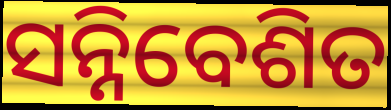
ସନ୍ନିବେଶିତ